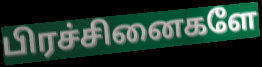
பிரச்சினைகளே